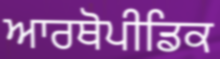
ਆਰਥੋਪੀਡਿਕ